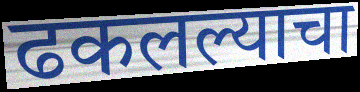
ढकलल्याचा